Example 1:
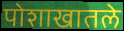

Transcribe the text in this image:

पोशाखातले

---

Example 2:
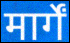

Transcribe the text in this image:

मार्गें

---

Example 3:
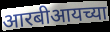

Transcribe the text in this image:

आरबीआयच्या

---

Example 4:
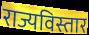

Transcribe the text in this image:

राज्यविस्तार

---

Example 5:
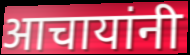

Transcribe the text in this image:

आचायांनी